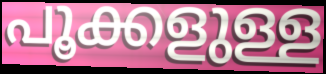
പൂക്കളുള്ള